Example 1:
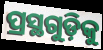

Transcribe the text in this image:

ପ୍ରସ୍ଥଗୁଡ଼ିକୁ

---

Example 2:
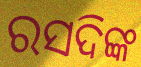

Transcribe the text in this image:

ରସଦିଙ୍କ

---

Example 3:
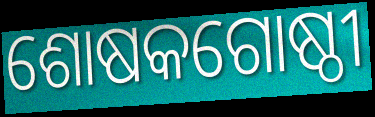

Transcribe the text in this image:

ଶୋଷକଗୋଷ୍ଠୀ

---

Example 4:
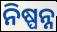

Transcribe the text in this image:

ନିଷ୍ପନ୍ନ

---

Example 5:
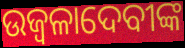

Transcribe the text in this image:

ଉଜ୍ୱଳାଦେବୀଙ୍କ